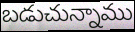
బడుచున్నాము